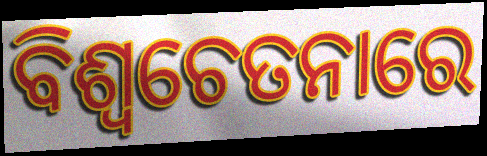
ବିଶ୍ୱଚେତନାରେ